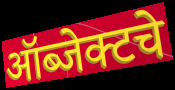
ऑब्जेक्टचे